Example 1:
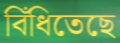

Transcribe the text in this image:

বিঁধিতেছে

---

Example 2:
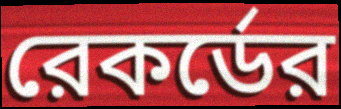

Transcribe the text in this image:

রেকর্ডের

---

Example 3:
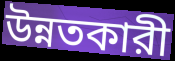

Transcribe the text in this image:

উন্নতকারী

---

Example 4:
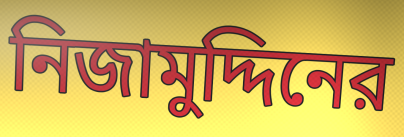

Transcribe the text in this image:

নিজামুদ্দিনের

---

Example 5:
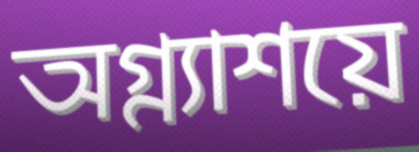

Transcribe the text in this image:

অগ্ন্যাশয়ে